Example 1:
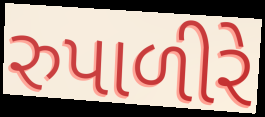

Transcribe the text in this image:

રુપાળીરે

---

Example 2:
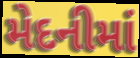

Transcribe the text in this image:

મેદનીમાં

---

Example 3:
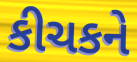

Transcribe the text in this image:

કીચકને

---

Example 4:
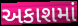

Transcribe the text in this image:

અકાશમાં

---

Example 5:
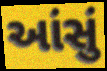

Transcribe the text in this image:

આંસું